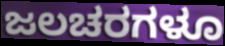
ಜಲಚರಗಳೂ